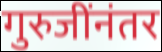
गुरुजींनंतर